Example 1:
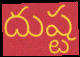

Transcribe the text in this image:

దుష్ట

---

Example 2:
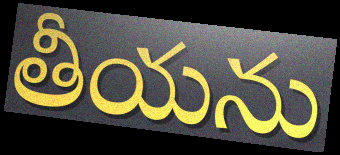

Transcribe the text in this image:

తీయను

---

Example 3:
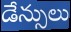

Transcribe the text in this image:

డేన్సులు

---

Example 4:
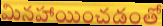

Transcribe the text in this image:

మినహాయించడంతో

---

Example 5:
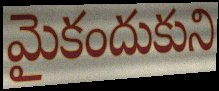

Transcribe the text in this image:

మైకందుకుని